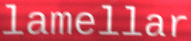
lamellar